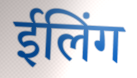
ईलिंग